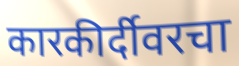
कारकीर्दीवरचा